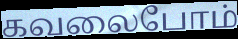
கவலைபோம்